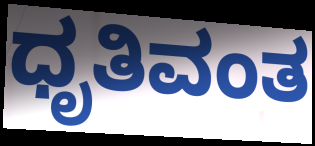
ಧೃತಿವಂತ